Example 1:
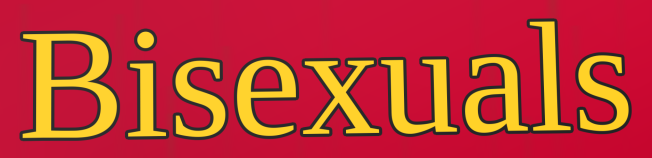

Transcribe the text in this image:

Bisexuals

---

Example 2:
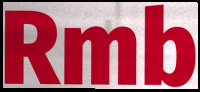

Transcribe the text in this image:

Rmb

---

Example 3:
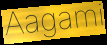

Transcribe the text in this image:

Aagami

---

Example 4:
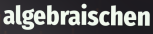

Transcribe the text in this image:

algebraischen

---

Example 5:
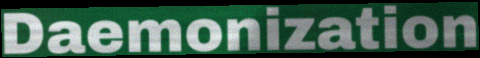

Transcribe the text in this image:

Daemonization